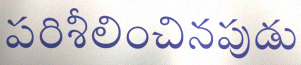
పరిశీలించినపుడు